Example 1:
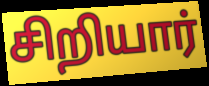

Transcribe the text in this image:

சிறியார்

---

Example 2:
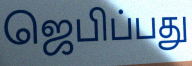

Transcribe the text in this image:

ஜெபிப்பது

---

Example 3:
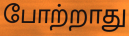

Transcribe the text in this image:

போற்றாது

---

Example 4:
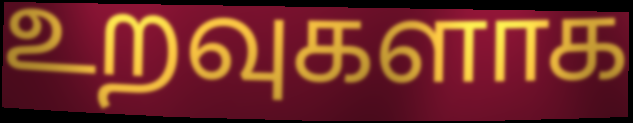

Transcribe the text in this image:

உறவுகளாக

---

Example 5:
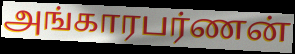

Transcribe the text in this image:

அங்காரபர்ணன்